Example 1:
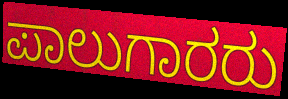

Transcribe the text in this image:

ಪಾಲುಗಾರರು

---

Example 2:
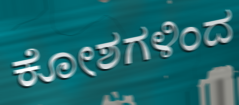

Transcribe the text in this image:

ಕೋಶಗಳಿಂದ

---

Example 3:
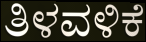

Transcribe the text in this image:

ತಿಳವಳಿಕೆ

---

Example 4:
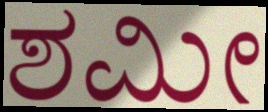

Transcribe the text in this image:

ಶಮೀ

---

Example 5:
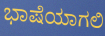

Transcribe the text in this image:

ಭಾಷೆಯಾಗಲಿ